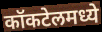
कॉकटेलमध्ये